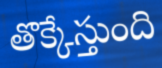
తొక్కేస్తుంది